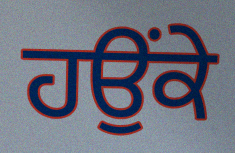
ਹਉਂਕੇ